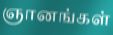
ஞானங்கள்